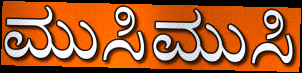
ಮುಸಿಮುಸಿ